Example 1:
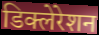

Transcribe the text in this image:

डिक्लेरेशन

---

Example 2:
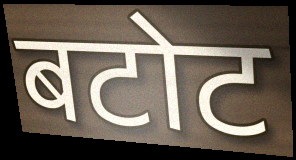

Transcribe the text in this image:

बटोट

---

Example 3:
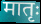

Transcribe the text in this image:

मातृः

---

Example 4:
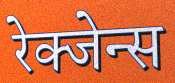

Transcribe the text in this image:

रेक्जेन्स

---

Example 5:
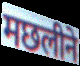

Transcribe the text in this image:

मछलीने